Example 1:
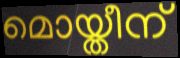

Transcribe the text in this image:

മൊയ്തീന്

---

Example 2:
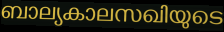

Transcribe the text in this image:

ബാല്യകാലസഖിയുടെ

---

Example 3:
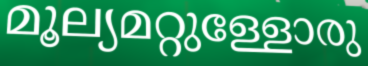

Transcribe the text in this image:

മൂല്യമറ്റുള്ളോരു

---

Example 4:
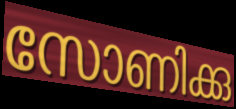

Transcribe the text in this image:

സോണിക്കു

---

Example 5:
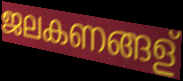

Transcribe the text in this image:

ജലകണങ്ങള്